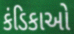
કંડિકાઓ